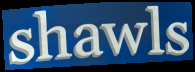
shawls